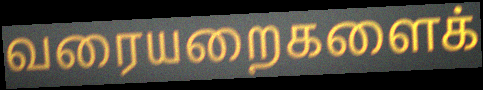
வரையறைகளைக்